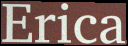
Erica